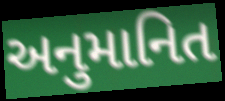
અનુમાનિત